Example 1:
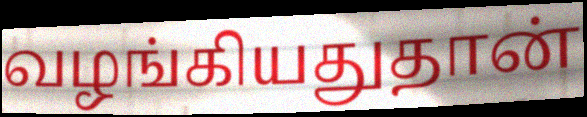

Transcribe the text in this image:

வழங்கியதுதான்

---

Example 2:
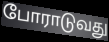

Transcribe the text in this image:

போராடுவது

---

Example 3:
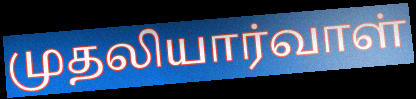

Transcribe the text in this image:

முதலியார்வாள்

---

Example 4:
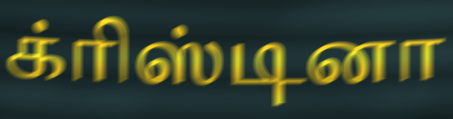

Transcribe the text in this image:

க்ரிஸ்டினா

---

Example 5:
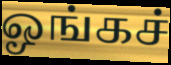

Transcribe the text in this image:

ஓங்கச்